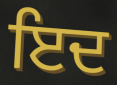
ਇਦ